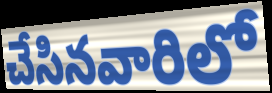
చేసినవారిలో